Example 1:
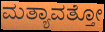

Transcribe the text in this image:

ಮತ್ಯಾವತ್ತೋ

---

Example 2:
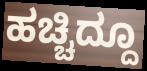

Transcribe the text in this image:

ಹಚ್ಚಿದ್ದೂ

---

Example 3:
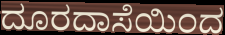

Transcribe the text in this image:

ದೂರದಾಸೆಯಿಂದ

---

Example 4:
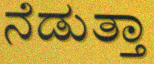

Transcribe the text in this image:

ನೆಡುತ್ತಾ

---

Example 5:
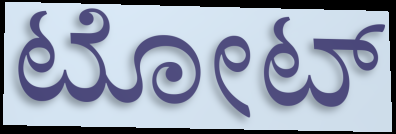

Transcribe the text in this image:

ಟೋಟ್